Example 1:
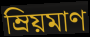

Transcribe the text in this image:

ম্রিয়মাণ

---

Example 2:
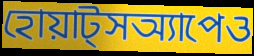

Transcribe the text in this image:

হোয়াট্‌সঅ্যাপেও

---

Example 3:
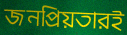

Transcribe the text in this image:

জনপ্রিয়তারই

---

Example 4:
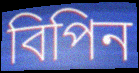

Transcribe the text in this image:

বিপিন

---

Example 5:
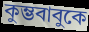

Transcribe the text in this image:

কুম্ভবাবুকে